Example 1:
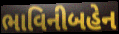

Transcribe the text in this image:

ભાવિનીબહેન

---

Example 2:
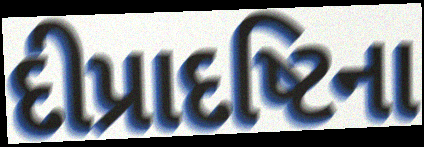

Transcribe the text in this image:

દીપ્રાદષ્ટિના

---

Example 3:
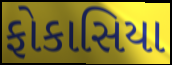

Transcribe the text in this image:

ફોકાસિયા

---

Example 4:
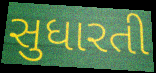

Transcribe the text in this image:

સુધારતી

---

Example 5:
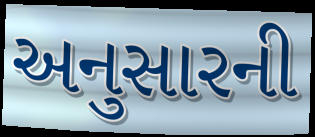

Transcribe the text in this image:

અનુસારની